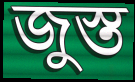
জুস্ত